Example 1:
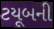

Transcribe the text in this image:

ટયૂબની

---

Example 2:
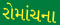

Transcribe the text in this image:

રોમાંચના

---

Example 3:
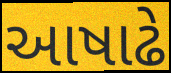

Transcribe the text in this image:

આષાઢે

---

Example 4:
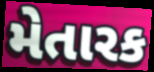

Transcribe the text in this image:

મેતારક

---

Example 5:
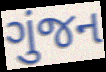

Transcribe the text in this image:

ગુંજન